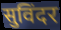
सुविंदर